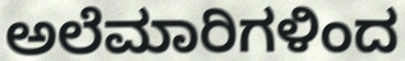
ಅಲೆಮಾರಿಗಳಿಂದ